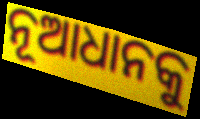
ନୂଆଧାନକୁ